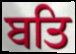
ਬਤਿ